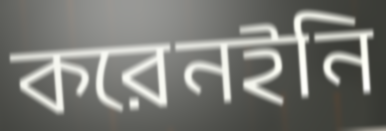
করেনইনি